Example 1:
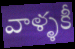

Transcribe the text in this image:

వాళ్ళకీ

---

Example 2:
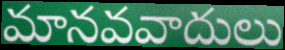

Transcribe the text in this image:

మానవవాదులు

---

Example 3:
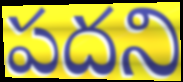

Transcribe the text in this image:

పదని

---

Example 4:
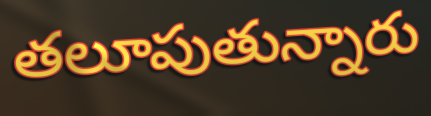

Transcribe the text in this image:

తలూపుతున్నారు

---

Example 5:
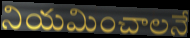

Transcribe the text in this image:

నియమించాలనే